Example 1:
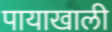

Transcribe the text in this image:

पायाखाली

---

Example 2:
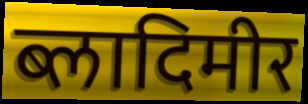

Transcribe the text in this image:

ब्लादिमीर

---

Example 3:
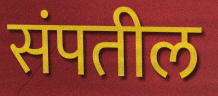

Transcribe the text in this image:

संपतील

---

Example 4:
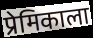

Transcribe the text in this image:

प्रेमिकाला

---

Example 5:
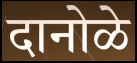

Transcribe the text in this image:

दानोळे